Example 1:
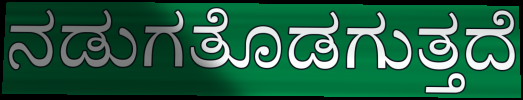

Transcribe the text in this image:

ನಡುಗತೊಡಗುತ್ತದೆ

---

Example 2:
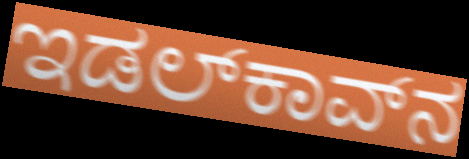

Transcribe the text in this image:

ಇಡಲ್‌ಕಾವ್‌ನ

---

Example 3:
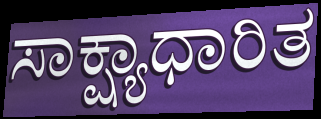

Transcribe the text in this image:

ಸಾಕ್ಷ್ಯಾಧಾರಿತ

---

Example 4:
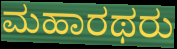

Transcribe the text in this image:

ಮಹಾರಥರು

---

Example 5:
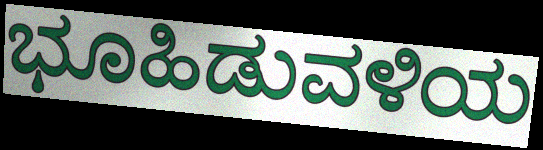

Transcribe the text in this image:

ಭೂಹಿಡುವಳಿಯ